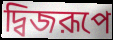
দ্বিজরূপে